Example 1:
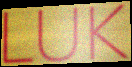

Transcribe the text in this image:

LUK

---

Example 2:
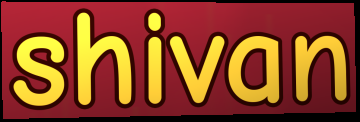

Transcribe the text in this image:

shivan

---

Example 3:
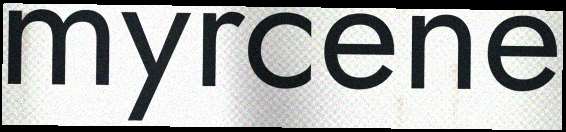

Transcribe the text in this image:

myrcene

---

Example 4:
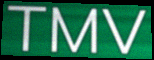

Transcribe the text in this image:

TMV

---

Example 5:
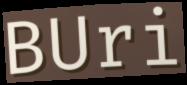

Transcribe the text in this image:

BUri